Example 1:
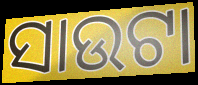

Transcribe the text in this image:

ସାଉଟା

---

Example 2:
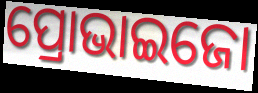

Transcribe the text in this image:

ପ୍ରୋଭାଇଜୋ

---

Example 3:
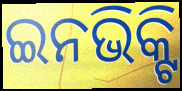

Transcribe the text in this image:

ଇନଭିକ୍ଟି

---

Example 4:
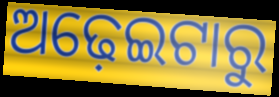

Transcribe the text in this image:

ଅଢ଼େଇଟାରୁ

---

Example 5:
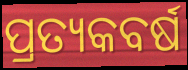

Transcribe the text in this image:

ପ୍ରତ୍ୟକବର୍ଷ